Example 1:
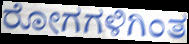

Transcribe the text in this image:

ರೋಗಗಳಿಗಿಂತ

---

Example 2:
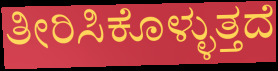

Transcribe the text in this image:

ತೀರಿಸಿಕೊಳ್ಳುತ್ತದೆ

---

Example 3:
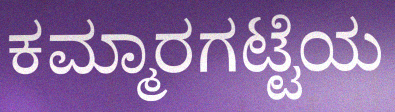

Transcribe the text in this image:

ಕಮ್ಮಾರಗಟ್ಟೆಯ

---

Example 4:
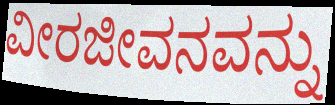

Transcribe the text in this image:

ವೀರಜೀವನವನ್ನು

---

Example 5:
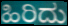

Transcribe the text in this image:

ಹಿರಿದು